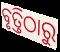
ବୃତ୍ତିଠାରୁ